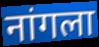
नांगला